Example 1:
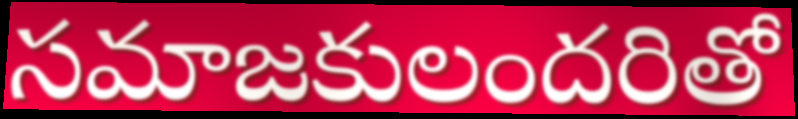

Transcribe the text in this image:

సమాజకులందరితో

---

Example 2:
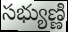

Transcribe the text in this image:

సభ్యుణ్ణి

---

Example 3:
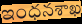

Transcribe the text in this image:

ఇంధనశాఖ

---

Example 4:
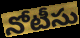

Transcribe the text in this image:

నోటీసు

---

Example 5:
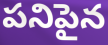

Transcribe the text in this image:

పనిపైన